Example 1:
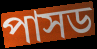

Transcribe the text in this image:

পাসড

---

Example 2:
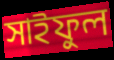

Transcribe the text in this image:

সাইফুল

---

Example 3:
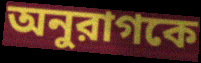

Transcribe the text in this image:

অনুরাগকে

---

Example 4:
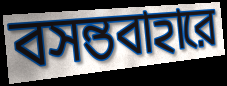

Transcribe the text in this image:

বসন্তবাহারে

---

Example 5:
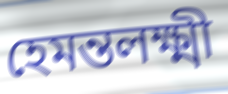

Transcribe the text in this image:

হেমন্তলক্ষ্মী